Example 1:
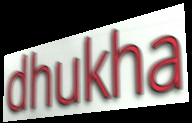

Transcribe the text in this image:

dhukha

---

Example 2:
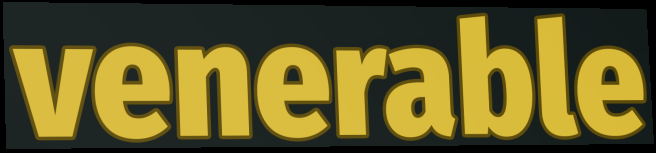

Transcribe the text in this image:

venerable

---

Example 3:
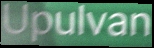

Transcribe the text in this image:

Upulvan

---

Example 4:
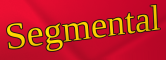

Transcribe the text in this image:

Segmental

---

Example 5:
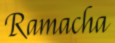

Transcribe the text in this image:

Ramacha